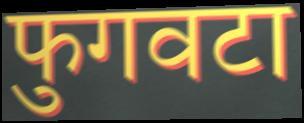
फुगवटा